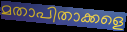
മതാപിതാക്കളെ